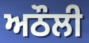
ਅਠੌਲੀ